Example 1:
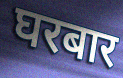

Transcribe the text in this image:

घरबार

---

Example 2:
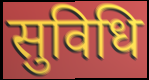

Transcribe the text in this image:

सुविधि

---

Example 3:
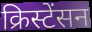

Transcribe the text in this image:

क्रिस्टेंसन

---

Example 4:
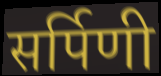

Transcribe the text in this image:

सर्पिणी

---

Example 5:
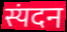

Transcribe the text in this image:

स्यंदन